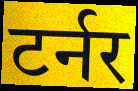
टर्नर